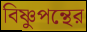
বিষ্ণুপন্থের